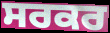
ਸਰਕਰ